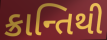
ક્રાન્તિથી